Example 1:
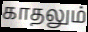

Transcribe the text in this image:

காதலும்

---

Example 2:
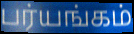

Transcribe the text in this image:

பர்யங்கம்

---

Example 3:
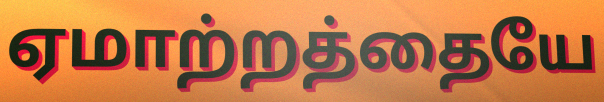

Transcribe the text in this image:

ஏமாற்றத்தையே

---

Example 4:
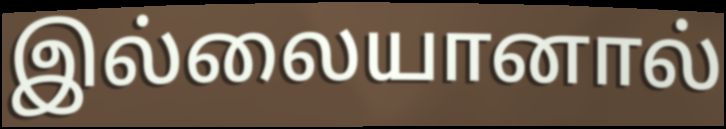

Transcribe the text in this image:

இல்லையானால்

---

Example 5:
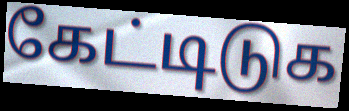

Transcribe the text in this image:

கேட்டிடுக